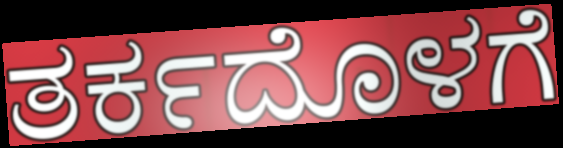
ತರ್ಕದೊಳಗೆ